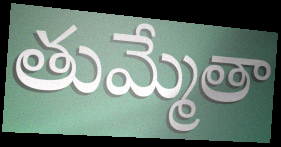
తుమ్మేతా